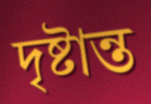
দৃষ্টান্ত